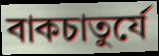
বাকচাতুর্যে